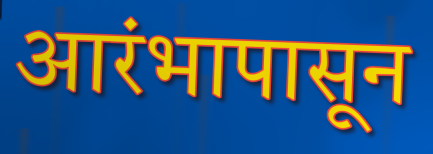
आरंभापासून